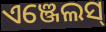
ଏଞ୍ଜେଲସ୍